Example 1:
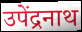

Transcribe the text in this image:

उपेंद्रनाथ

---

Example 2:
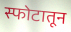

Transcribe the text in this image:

स्फोटातून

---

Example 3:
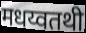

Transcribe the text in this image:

मधय्वतथी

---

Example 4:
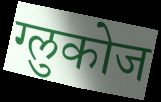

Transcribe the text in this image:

ग्लुकोज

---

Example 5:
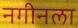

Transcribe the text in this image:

नगीनला